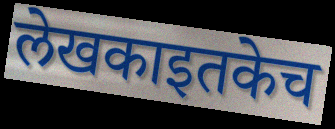
लेखकाइतकेच